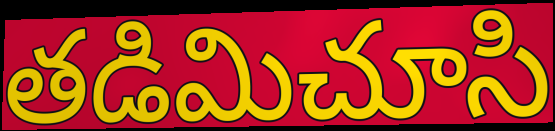
తడిమిచూసి